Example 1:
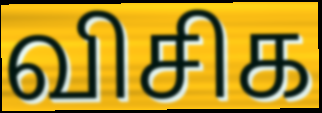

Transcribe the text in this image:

விசிக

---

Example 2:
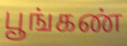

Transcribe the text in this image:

பூங்கண்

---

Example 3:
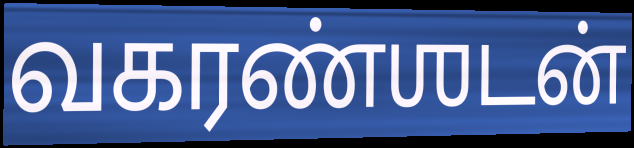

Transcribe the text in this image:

வகரண்ஶடன்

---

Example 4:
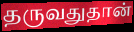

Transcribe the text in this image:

தருவதுதான்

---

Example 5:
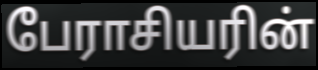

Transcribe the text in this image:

பேராசியரின்